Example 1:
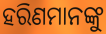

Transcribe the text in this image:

ହରିଣମାନଙ୍କୁ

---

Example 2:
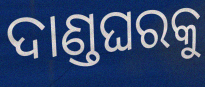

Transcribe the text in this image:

ଦାଣ୍ଡଘରକୁ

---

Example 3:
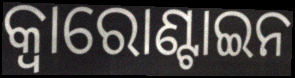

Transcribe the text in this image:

କ୍ୱାରୋଣ୍ଟାଇନ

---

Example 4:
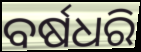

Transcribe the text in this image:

ବର୍ଷଧରି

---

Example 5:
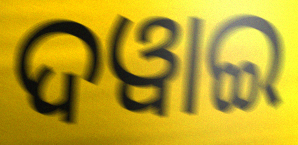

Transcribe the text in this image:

ଦୱାଇ